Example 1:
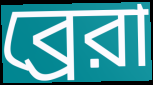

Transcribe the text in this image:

ব্রেরা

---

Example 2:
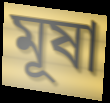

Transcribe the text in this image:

মূষা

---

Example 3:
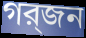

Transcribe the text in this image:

গর্‍জন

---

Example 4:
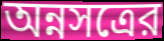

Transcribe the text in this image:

অন্নসত্রের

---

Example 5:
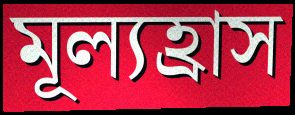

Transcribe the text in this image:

মূল্যহ্রাস